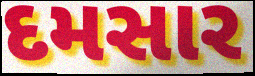
દમસાર